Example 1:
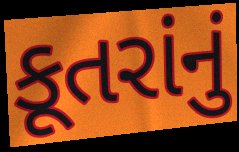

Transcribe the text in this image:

કૂતરાંનું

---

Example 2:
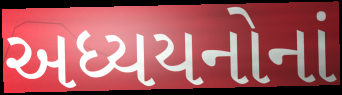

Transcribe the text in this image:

અધ્યયનોનાં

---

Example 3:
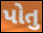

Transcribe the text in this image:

પોતુ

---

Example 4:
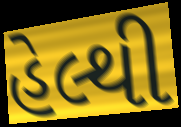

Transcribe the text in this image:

હેલ્થી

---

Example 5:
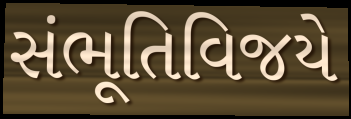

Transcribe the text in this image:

સંભૂતિવિજયે